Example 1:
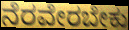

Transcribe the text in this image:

ನೆರವೇರಬೇಕು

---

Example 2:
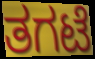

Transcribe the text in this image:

ತಗಟೆ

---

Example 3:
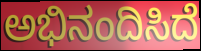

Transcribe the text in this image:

ಅಭಿನಂದಿಸಿದೆ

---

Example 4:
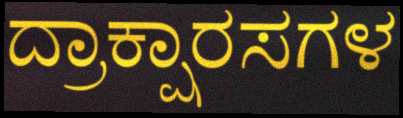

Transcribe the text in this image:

ದ್ರಾಕ್ಷಾರಸಗಳ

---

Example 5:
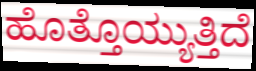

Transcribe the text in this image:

ಹೊತ್ತೊಯ್ಯುತ್ತಿದೆ